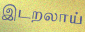
இடறலாய்